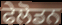
ਫੇਲੋਡਨ